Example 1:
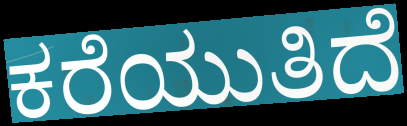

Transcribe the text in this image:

ಕರೆಯುತಿದೆ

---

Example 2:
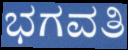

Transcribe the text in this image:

ಭಗವತಿ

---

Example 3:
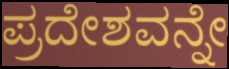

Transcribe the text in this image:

ಪ್ರದೇಶವನ್ನೇ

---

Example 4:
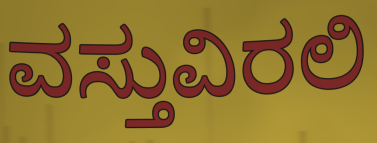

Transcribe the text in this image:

ವಸ್ತುವಿರಲಿ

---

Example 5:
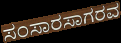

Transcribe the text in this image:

ಸಂಸಾರಸಾಗರವ